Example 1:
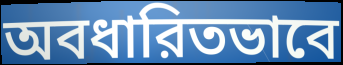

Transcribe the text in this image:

অবধারিতভাবে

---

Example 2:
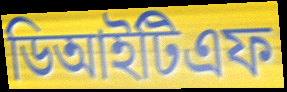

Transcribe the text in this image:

ডিআইটিএফ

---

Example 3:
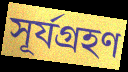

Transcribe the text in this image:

সূর্যগ্রহণ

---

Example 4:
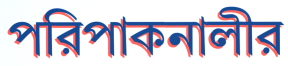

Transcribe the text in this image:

পরিপাকনালীর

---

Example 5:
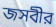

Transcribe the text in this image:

জসবীর